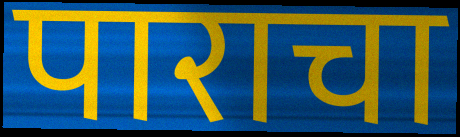
पाराचा